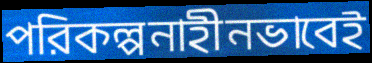
পরিকল্পনাহীনভাবেই